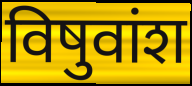
विषुवांश